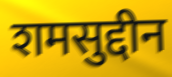
शमसुद्दीन